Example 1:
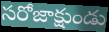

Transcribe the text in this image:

సరోజాక్షుండు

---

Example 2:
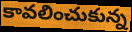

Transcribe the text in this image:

కావలించుకున్న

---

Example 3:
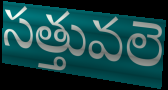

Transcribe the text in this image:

సత్తువలె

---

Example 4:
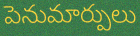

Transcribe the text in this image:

పెనుమార్పులు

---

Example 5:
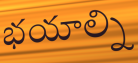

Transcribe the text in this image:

భయాల్ని